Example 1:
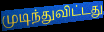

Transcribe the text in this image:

முடிந்துவிட்டது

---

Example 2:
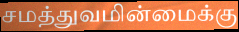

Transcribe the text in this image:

சமத்துவமின்மைக்கு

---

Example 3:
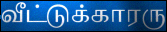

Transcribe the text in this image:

வீட்டுக்காரரு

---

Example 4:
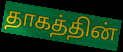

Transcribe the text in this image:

தாகத்தின்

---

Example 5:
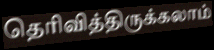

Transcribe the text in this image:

தெரிவித்திருக்கலாம்